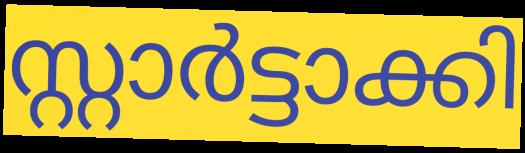
സ്റ്റാർട്ടാക്കി